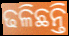
ଢଳିଛନ୍ତି